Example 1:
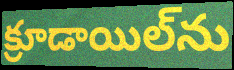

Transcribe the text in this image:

క్రూడాయిల్‌ను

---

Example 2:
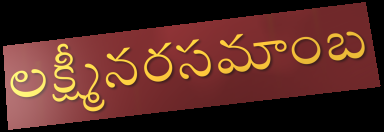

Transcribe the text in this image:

లక్ష్మీనరసమాంబ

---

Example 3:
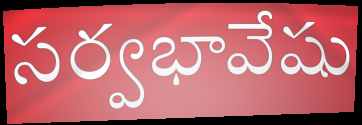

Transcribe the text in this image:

సర్వభావేషు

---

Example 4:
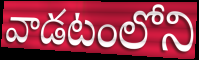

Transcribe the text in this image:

వాడటంలోని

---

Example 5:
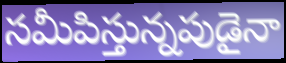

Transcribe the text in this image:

సమీపిస్తున్నపుడైనా